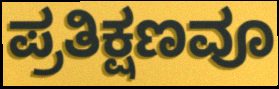
ಪ್ರತಿಕ್ಷಣವೂ